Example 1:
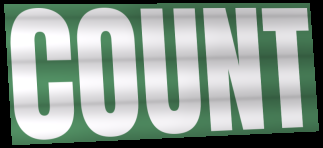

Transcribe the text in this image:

COUNT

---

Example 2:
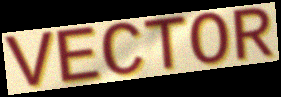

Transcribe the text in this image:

VECTOR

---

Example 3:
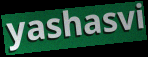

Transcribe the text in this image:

yashasvi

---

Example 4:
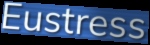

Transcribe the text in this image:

Eustress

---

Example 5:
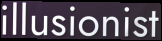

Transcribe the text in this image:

illusionist